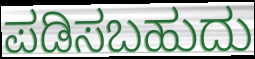
ಪಡಿಸಬಹುದು